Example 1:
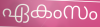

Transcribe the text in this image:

ഏകംസം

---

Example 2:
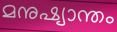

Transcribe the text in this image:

മനുഷ്യാന്തം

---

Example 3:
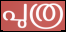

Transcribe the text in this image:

പുത്ര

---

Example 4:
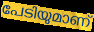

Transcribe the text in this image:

പേടിയുമാണ്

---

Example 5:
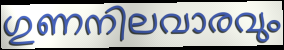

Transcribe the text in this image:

ഗുണനിലവാരവും